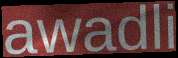
awadli